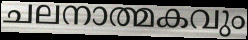
ചലനാത്മകവും